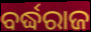
ବର୍ଦ୍ଧରାଜ